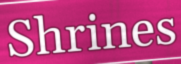
Shrines